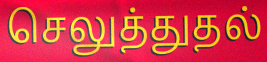
செலுத்துதல்